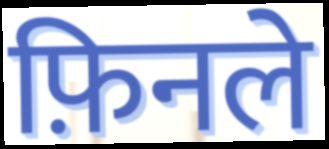
फ़िनले